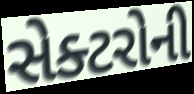
સેક્ટરોની